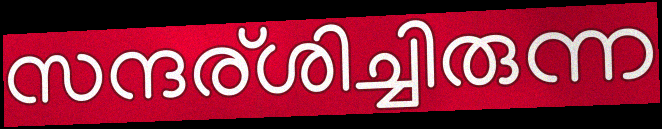
സന്ദര്ശിച്ചിരുന്ന